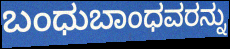
ಬಂಧುಬಾಂಧವರನ್ನು